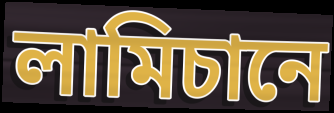
লামিচানে